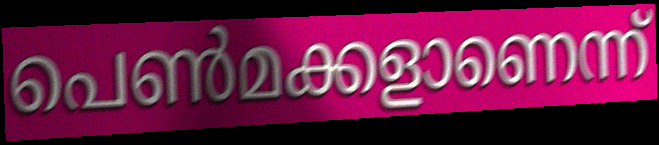
പെൺമക്കളാണെന്ന്